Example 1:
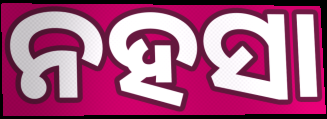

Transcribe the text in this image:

ନହସା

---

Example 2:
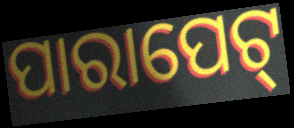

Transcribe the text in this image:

ପାରାପେଟ୍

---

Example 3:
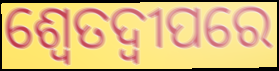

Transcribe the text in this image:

ଶ୍ୱେତଦ୍ୱୀପରେ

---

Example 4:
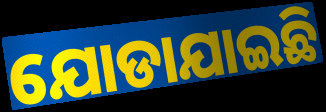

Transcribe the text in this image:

ଯୋଡାଯାଇଛି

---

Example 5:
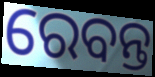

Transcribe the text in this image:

ରେବନ୍ତ